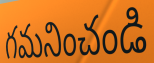
గమనించండి